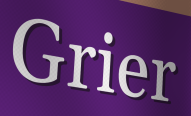
Grier